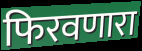
फिरवणारा